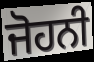
ਜੋਹਨੀ